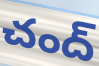
చంద్